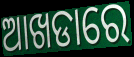
ଆଖଡାରେ